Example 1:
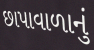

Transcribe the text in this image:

છાપાવાળાનું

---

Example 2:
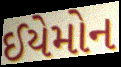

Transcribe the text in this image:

ઈયેમોન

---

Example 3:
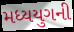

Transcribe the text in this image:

મધ્યયુગની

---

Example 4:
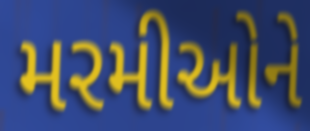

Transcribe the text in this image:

મરમીઓને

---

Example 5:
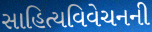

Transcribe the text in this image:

સાહિત્યવિવેચનની